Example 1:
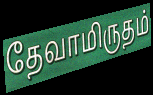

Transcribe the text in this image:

தேவாமிருதம்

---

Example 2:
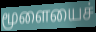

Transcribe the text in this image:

மூளையைச்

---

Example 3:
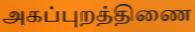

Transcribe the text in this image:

அகப்புறத்திணை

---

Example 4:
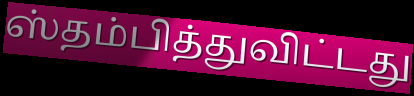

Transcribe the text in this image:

ஸ்தம்பித்துவிட்டது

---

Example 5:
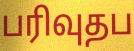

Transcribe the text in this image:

பரிவுதப